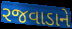
રજવાડાને